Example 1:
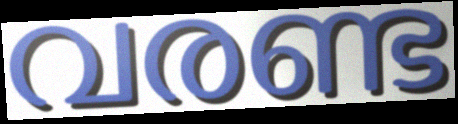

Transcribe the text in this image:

വരണ്ട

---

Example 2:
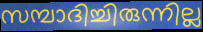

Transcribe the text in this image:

സമ്പാദിച്ചിരുന്നില്ല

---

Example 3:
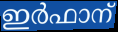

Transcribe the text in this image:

ഇർഫാന്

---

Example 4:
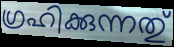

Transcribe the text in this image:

ഗ്രഹിക്കുന്നതു്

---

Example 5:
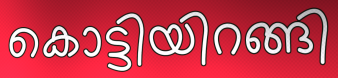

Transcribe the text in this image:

കൊട്ടിയിറങ്ങി